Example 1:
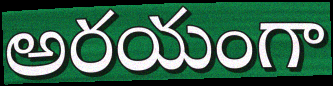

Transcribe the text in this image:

అరయంగా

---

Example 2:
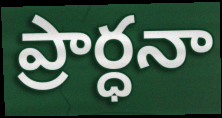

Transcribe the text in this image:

ప్రార్ధనా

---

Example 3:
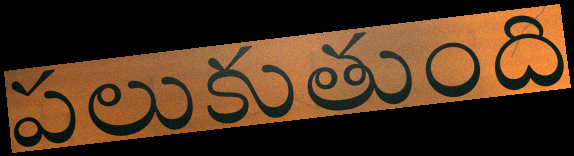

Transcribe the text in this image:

పలుకుతుంది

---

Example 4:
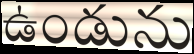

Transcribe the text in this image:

ఉండును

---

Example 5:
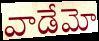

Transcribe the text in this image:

వాడేమో